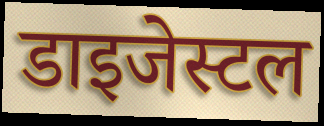
डाइजेस्टल